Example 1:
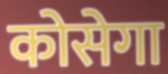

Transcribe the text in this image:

कोसेगा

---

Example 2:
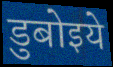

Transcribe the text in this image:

डुबोइये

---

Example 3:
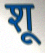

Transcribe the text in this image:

शू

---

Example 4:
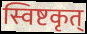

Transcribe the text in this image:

स्विष्टकृत्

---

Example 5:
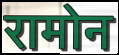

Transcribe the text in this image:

रामोन